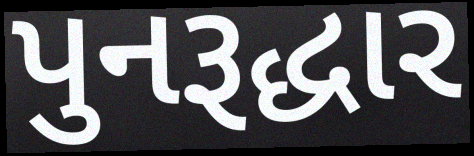
પુનરૂદ્ધાર